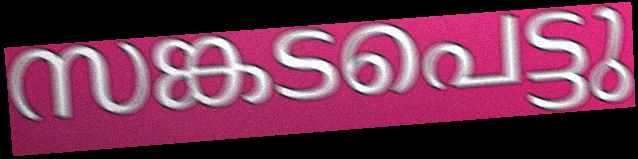
സങ്കടപെട്ടു